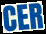
CER